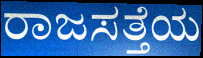
ರಾಜಸತ್ತೆಯ